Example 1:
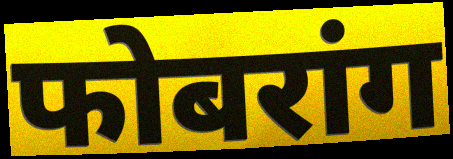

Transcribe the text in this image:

फोबरांग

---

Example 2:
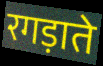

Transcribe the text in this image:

रगड़ाते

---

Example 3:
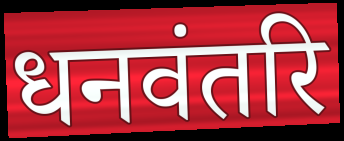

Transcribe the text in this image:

धनवंतरि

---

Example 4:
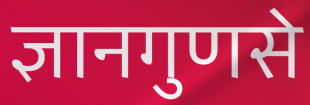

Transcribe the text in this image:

ज्ञानगुणसे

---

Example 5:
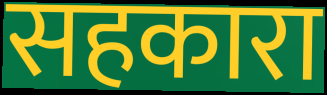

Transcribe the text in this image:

सहकारा